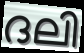
ദലി